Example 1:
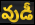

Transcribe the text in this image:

వుడీ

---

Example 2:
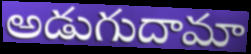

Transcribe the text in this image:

అడుగుదామా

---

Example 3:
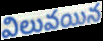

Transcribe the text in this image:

విలువయిన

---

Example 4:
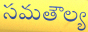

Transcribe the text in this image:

సమతౌల్య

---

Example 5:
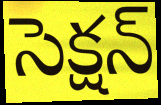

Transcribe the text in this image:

సెక్షన్